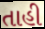
તાહી